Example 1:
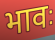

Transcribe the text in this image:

भावः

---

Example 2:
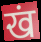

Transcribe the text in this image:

खं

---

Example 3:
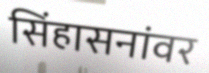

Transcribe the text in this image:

सिंहासनांवर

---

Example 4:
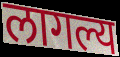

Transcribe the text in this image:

लागल्य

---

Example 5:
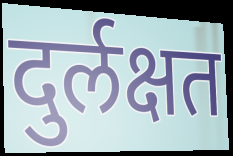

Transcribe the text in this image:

दुर्लक्षत